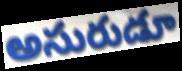
అసురుడూ